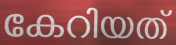
കേറിയത്